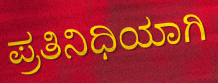
ಪ್ರತಿನಿಧಿಯಾಗಿ